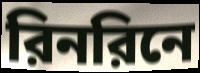
রিনরিনে